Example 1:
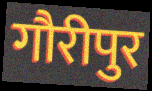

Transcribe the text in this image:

गौरीपुर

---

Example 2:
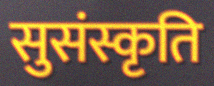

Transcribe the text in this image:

सुसंस्कृति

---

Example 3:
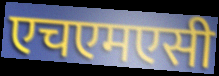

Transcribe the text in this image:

एचएमएसी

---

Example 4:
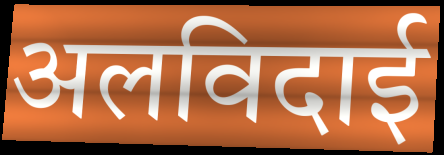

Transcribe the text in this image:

अलविदाई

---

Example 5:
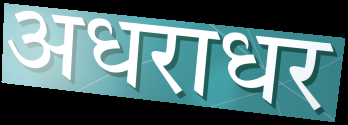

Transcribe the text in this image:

अधराधर